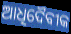
ଆଧିଦୈବୀକ